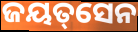
ଜୟତ୍‌ସେନ